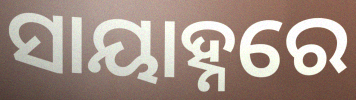
ସାୟାହ୍ନରେ